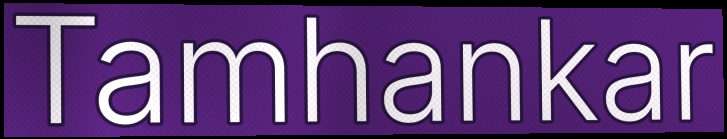
Tamhankar